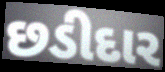
છડીદાર